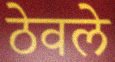
ठेवले